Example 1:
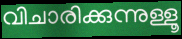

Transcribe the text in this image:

വിചാരിക്കുന്നുള്ളൂ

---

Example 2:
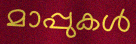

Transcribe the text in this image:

മാപ്പുകൾ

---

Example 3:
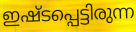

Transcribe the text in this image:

ഇഷ്ടപ്പെട്ടിരുന്ന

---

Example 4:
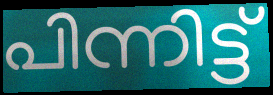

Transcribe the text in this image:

പിന്നിട്ട്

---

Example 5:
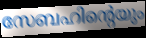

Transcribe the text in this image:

സേബഹിന്റെയും